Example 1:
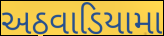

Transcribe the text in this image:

અઠવાડિયામા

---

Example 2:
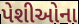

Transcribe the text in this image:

પેશીઓના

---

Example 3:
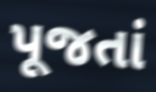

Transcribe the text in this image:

પૂજતાં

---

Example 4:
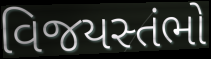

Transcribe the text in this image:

વિજયસ્તંભો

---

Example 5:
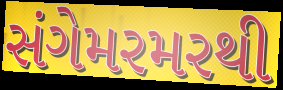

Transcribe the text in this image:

સંગેમરમરથી